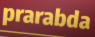
prarabda